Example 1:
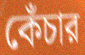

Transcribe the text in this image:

কেঁচার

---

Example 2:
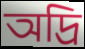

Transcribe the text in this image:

অদ্রি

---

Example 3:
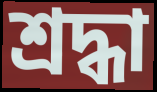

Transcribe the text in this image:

শ্রদ্ধা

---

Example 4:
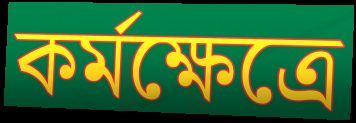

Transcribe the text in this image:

কর্মক্ষেত্রে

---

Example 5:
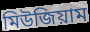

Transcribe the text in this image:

মিউজিয়াম